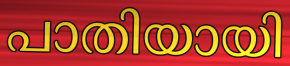
പാതിയായി